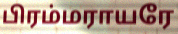
பிரம்மராயரே